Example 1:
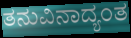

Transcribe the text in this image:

ತನುವಿನಾದ್ಯಂತ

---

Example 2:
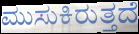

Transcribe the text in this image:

ಮುಸುಕಿರುತ್ತದೆ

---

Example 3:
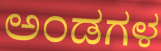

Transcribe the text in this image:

ಅಂಡಗಳ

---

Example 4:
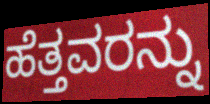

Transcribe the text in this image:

ಹೆತ್ತವರನ್ನು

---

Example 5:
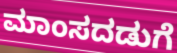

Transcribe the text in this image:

ಮಾಂಸದಡುಗೆ